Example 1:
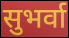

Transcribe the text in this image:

सुभर्वा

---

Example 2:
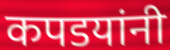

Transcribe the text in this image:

कपडयांनी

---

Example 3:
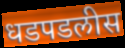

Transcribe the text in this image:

धडपडलीस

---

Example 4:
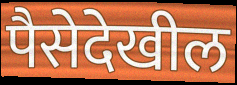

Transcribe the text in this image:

पैसेदेखील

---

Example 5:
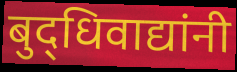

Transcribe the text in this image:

बुद्धिवाद्यांनी